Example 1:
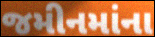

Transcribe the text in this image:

જમીનમાંના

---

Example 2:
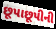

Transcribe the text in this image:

છૂપાછૂપીની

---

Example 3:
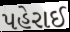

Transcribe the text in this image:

પહેરાઈ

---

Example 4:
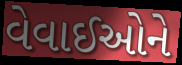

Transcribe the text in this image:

વેવાઈઓને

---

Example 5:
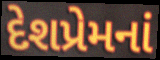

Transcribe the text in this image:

દેશપ્રેમનાં